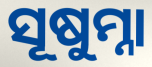
ସୂଷୁମ୍ନା